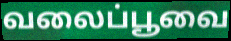
வலைப்பூவை